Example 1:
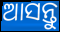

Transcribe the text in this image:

ଆସନ୍ତୁ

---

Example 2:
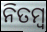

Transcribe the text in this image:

ନିତମ୍ୱ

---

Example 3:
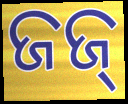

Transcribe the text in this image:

ଜଜ୍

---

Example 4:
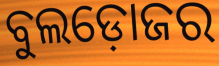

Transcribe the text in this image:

ବୁଲଡ଼ୋଜର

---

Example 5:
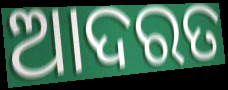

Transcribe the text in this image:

ଆଦରତ